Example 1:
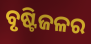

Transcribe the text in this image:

ବୃଷ୍ଟିଜଳର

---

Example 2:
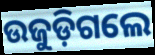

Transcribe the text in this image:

ଉଜୁଡ଼ିଗଲେ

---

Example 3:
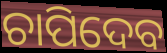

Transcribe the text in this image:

ଚାପିଦେବ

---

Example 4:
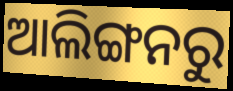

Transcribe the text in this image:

ଆଲିଙ୍ଗନରୁ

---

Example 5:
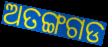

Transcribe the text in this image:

ଅତଙ୍ଗଗଡ